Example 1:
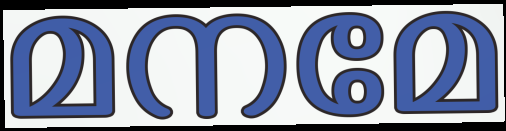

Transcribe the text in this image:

മനമേ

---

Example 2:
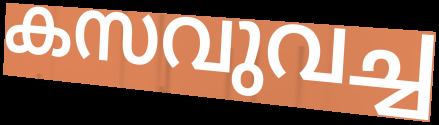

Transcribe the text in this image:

കസവുവച്ച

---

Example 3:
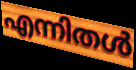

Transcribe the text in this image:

എന്നിതൾ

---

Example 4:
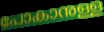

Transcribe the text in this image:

പോകാനുള്ള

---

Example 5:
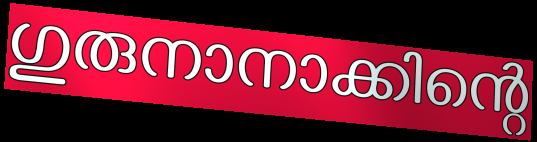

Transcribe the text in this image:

ഗുരുനാനാക്കിന്റെ